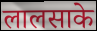
लालसाके